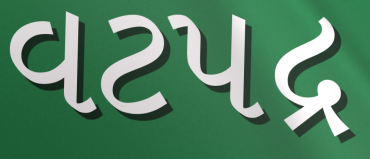
વટપદ્ર